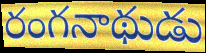
రంగనాథుడు